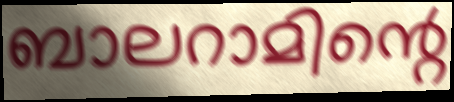
ബാലറാമിന്റെ